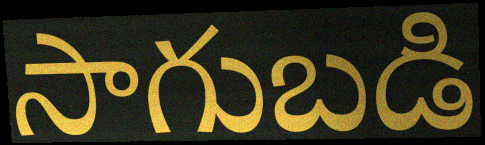
సాగుబడి